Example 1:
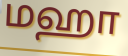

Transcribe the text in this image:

மஹா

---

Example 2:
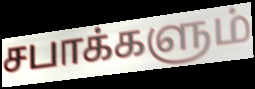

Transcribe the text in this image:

சபாக்களும்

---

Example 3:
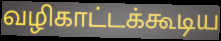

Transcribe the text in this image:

வழிகாட்டக்கூடிய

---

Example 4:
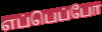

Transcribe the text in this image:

எப்பெப்போ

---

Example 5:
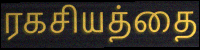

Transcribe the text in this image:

ரகசியத்தை